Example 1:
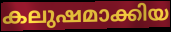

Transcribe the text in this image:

കലുഷമാക്കിയ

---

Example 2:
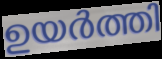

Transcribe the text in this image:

ഉയർത്തി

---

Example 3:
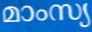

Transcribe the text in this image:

മാംസ്യ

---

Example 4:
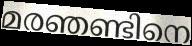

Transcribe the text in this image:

മരഞണ്ടിനെ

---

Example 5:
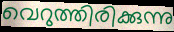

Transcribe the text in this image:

വെറുത്തിരിക്കുന്നു